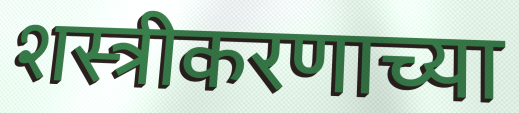
शस्त्रीकरणाच्या